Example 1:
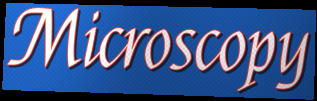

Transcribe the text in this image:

Microscopy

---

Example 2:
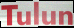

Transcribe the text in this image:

Tulun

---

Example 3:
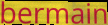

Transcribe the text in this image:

bermain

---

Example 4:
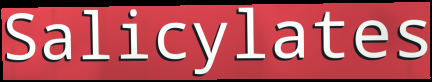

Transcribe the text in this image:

Salicylates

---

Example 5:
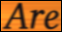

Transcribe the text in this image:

Are